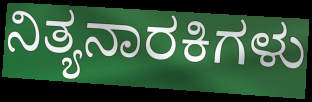
ನಿತ್ಯನಾರಕಿಗಳು